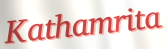
Kathamrita